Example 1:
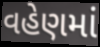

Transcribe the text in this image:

વહેણમાં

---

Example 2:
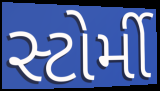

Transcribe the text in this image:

સ્ટોર્મી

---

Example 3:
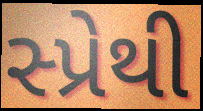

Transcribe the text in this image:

સ્પ્રેથી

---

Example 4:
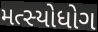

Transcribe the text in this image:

મત્સ્યોધોગ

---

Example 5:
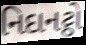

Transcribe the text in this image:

નિદાનટ્ઠો